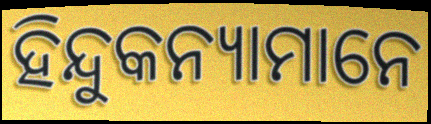
ହିନ୍ଦୁକନ୍ୟାମାନେ